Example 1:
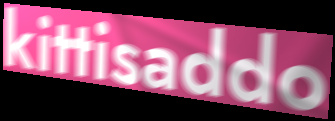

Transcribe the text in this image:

kittisaddo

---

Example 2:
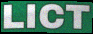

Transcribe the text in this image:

LICT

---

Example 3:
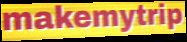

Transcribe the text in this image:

makemytrip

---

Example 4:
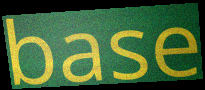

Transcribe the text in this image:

base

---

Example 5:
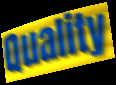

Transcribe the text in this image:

Quality